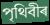
পৃথিবীৰ